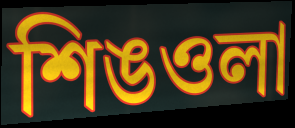
শিঙওলা